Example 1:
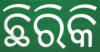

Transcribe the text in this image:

ଛିରିକି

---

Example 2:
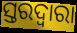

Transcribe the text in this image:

ସ୍ତରଦ୍ୱାରା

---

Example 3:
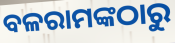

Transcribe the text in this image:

ବଳରାମଙ୍କଠାରୁ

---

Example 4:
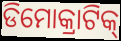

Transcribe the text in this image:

ଡିମୋକ୍ରାଟିକ୍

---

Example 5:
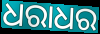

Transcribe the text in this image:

ଧରାଧର